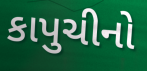
કાપુચીનો